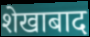
शेखाबाद